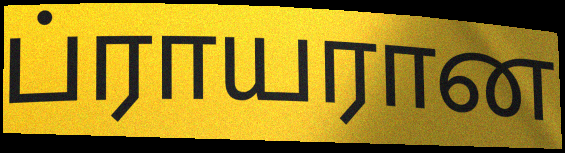
ப்ராயரான